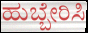
ಹುಬ್ಬೇರಿಸಿ